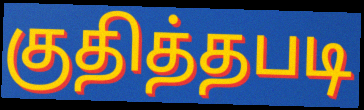
குதித்தபடி